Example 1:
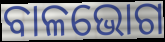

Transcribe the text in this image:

ବାଳଭୋଗ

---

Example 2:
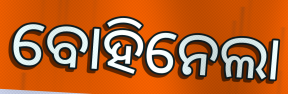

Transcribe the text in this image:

ବୋହିନେଲା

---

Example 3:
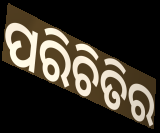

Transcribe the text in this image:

ପରିଚିତିର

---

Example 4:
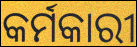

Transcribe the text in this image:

କର୍ମକାରୀ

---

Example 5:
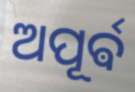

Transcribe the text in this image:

ଅପୂର୍ଵ